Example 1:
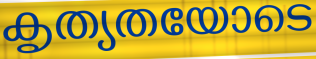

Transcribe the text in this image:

കൃത്യതയോടെ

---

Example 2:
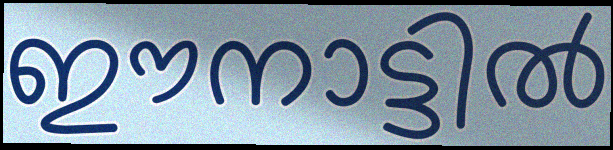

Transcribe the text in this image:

ഈനാട്ടിൽ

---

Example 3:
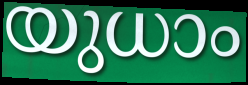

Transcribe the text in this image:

യുധാം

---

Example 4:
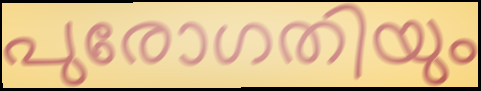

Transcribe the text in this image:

പുരോഗതിയും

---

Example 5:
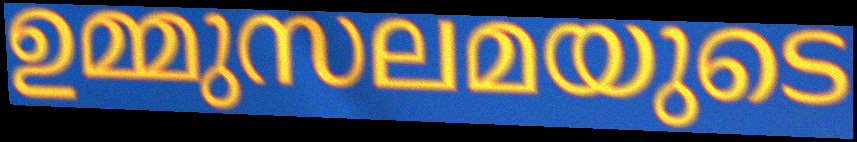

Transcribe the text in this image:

ഉമ്മുസലമയുടെ